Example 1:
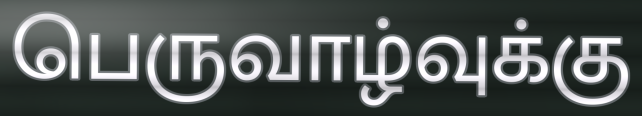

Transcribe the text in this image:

பெருவாழ்வுக்கு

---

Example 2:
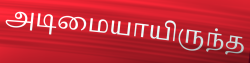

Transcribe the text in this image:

அடிமையாயிருந்த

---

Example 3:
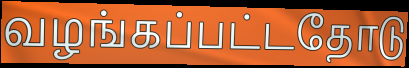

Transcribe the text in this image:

வழங்கப்பட்டதோடு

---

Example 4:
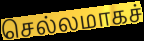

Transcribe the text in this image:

செல்லமாகச்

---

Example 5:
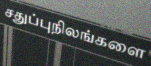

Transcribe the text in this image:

சதுப்புநிலங்களை